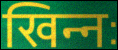
खिन्नः